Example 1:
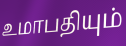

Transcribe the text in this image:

உமாபதியும்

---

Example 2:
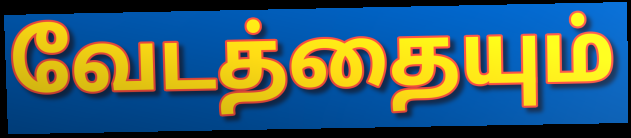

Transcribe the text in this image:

வேடத்தையும்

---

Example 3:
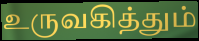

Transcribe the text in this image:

உருவகித்தும்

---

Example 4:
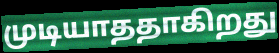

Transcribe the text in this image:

முடியாததாகிறது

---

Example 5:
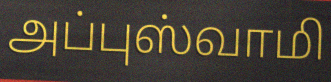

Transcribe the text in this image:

அப்புஸ்வாமி